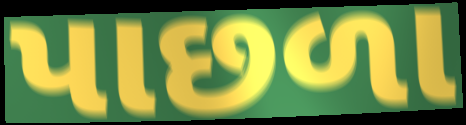
પાછળા